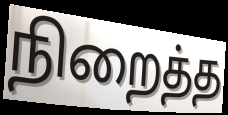
நிறைத்த